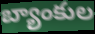
బ్యాంకుల